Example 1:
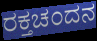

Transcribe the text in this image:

ರಕ್ತಚಂದನ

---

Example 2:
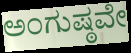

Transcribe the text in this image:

ಅಂಗುಷ್ಠವೇ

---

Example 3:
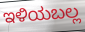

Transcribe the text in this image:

ಇಳಿಯಬಲ್ಲ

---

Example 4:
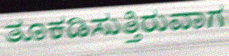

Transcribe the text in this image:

ತೂಕಡಿಸುತ್ತಿರುವಾಗ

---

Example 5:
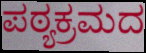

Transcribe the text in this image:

ಪಠ್ಯಕ್ರಮದ